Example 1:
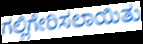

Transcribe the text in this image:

ಗಲ್ಲಿಗೇರಿಸಲಾಯಿತು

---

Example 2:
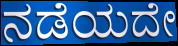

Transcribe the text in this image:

ನಡೆಯದೇ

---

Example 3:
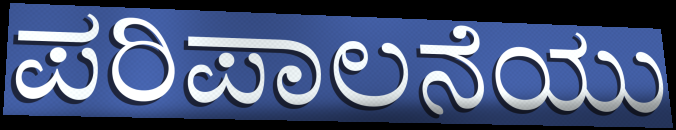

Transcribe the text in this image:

ಪರಿಪಾಲನೆಯು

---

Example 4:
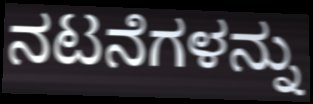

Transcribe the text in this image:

ನಟನೆಗಳನ್ನು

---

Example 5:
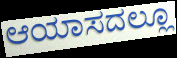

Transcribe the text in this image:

ಆಯಾಸದಲ್ಲೂ